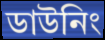
ডাউনিং